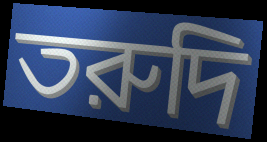
তরুদি